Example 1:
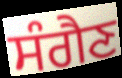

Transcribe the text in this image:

ਸੰਗੈਣ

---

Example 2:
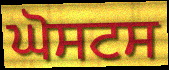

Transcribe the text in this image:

ਘੋਸਟਸ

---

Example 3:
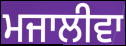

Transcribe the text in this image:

ਮਜਾਲੀਵਾ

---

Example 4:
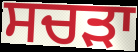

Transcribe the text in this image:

ਸਚੜਾ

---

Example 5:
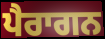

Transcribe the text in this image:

ਪੈਰਾਗਨ